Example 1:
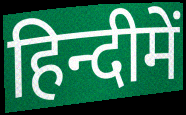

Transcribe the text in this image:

हिन्दीमें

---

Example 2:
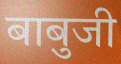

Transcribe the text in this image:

बाबुजी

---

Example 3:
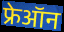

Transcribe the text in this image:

फ्रेऑन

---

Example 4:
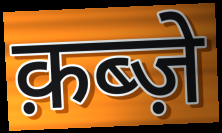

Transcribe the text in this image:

क़ब्ज़े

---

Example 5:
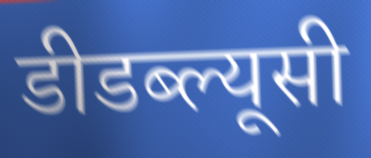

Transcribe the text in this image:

डीडब्ल्यूसी